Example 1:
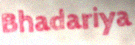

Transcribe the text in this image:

Bhadariya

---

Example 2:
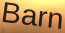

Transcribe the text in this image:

Barn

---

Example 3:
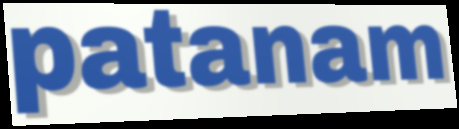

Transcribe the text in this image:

patanam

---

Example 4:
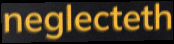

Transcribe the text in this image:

neglecteth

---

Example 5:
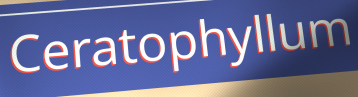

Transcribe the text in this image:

Ceratophyllum